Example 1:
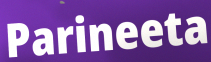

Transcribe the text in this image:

Parineeta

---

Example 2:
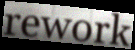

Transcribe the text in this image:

rework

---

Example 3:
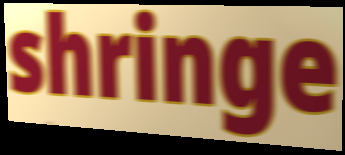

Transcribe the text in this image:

shringe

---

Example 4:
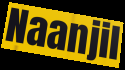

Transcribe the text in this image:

Naanjil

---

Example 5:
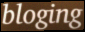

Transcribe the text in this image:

bloging